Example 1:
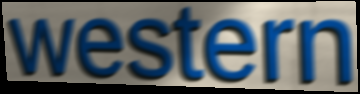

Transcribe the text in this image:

western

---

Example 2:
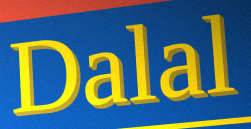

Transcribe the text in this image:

Dalal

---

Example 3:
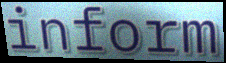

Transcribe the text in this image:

inform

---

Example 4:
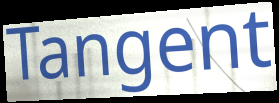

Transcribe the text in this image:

Tangent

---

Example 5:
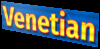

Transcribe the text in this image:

Venetian